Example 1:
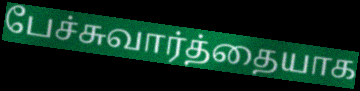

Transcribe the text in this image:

பேச்சுவார்த்தையாக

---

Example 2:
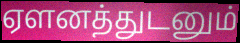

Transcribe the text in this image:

ஏளனத்துடனும்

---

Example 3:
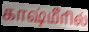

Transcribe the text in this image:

காஷ்மீரில்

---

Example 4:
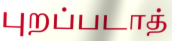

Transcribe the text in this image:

புறப்படாத்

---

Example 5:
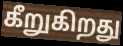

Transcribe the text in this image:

கீறுகிறது